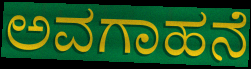
ಅವಗಾಹನೆ